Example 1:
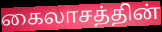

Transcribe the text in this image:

கைலாசத்தின்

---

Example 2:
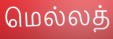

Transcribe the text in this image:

மெல்லத்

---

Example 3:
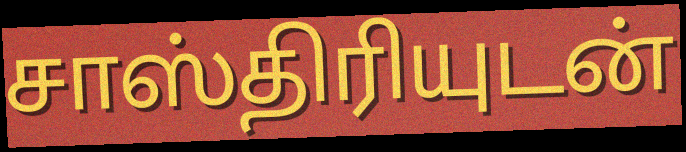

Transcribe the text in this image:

சாஸ்திரியுடன்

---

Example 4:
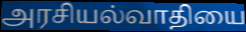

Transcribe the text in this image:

அரசியல்வாதியை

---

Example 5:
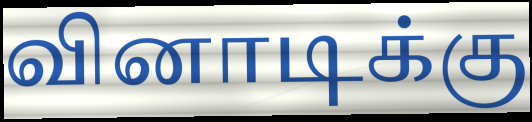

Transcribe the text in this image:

வினாடிக்கு